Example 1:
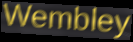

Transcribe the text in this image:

Wembley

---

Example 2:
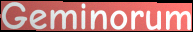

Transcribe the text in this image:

Geminorum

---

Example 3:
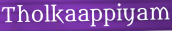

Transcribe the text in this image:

Tholkaappiyam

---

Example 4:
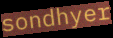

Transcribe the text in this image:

sondhyer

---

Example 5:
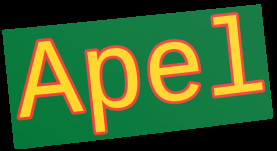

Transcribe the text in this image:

Apel